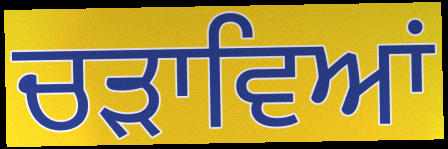
ਚੜਾਵਿਆਂ